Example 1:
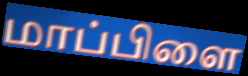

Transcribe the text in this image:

மாப்பிளை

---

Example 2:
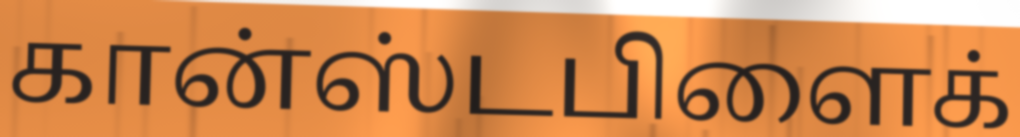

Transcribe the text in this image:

கான்ஸ்டபிளைக்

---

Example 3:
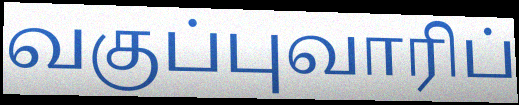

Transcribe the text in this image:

வகுப்புவாரிப்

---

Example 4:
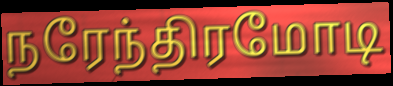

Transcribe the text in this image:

நரேந்திரமோடி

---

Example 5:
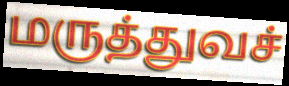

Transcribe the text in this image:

மருத்துவச்